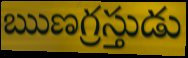
ఋణగ్రస్తుడు